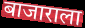
बाजाराला